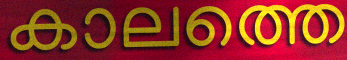
കാലത്തെ